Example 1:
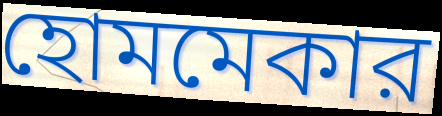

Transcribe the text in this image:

হোমমেকার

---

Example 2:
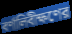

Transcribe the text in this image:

বর্ণালিবীক্ষণের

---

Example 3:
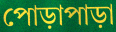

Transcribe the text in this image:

পোড়াপাড়া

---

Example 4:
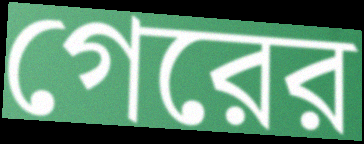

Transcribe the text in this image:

গেরের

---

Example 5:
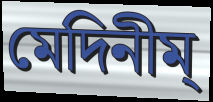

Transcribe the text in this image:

মেদিনীম্